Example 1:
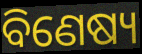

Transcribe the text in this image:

ବିଣେଷ୍ୟ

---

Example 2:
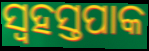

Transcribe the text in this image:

ସ୍ୱହସ୍ତପାକ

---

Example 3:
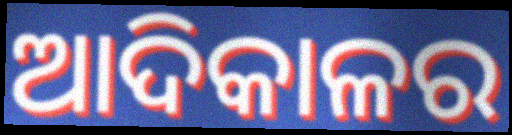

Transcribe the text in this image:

ଆଦିକାଳର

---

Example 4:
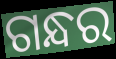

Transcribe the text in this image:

ଗନ୍ଧର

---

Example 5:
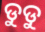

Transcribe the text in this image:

ଡୁଡୁ